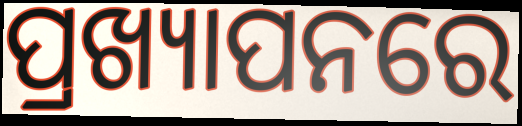
ପ୍ରଖ୍ୟାପନରେ